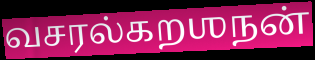
வசரல்கறஶநன்